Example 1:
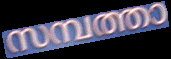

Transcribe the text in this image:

സമ്പത്താ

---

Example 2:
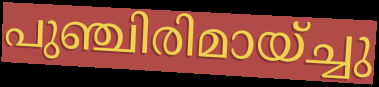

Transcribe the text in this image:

പുഞ്ചിരിമായ്ച്ചു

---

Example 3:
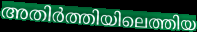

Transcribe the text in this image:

അതിർത്തിയിലെത്തിയ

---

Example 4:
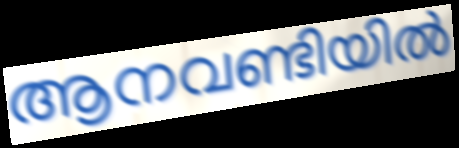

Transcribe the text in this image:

ആനവണ്ടിയിൽ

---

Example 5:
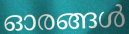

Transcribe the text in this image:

ഓരങ്ങൾ